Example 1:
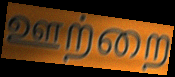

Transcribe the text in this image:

ஊற்றை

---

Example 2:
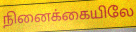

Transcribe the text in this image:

நினைக்கையிலே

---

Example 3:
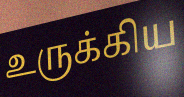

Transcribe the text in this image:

உருக்கிய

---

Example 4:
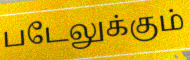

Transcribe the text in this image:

படேலுக்கும்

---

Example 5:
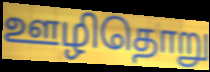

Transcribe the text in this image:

ஊழிதொறு